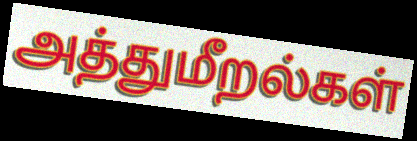
அத்துமீறல்கள்